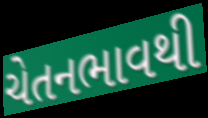
ચેતનભાવથી